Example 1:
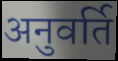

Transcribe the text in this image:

अनुवर्ति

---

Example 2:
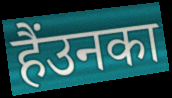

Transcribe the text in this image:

हैंउनका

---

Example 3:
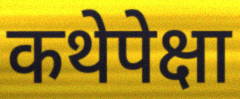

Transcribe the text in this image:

कथेपेक्षा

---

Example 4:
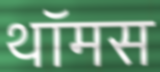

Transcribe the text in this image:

थॉमस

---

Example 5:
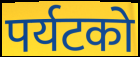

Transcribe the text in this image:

पर्यटको